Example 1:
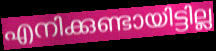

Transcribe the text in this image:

എനിക്കുണ്ടായിട്ടില്ല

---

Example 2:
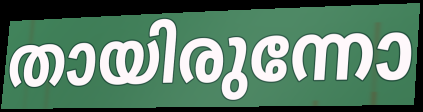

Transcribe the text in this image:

തായിരുന്നോ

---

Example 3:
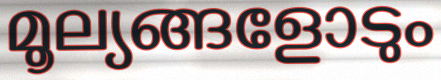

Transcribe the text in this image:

മൂല്യങ്ങളോടും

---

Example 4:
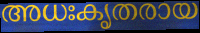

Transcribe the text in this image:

അധഃകൃതരായ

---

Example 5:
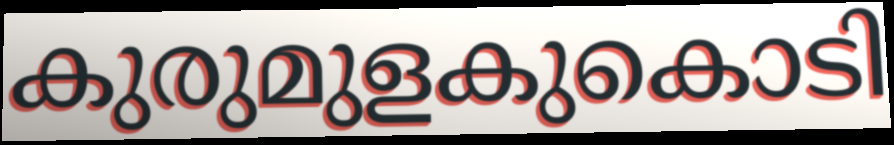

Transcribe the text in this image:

കുരുമുളകുകൊടി